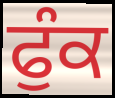
ਫੁੰਕ